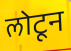
लोटून